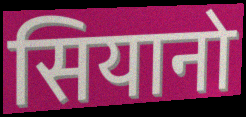
सियानो